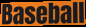
Baseball